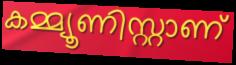
കമ്മ്യൂണിസ്റ്റാണ്